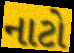
નાટો